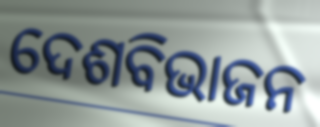
ଦେଶବିଭାଜନ